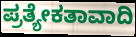
ಪ್ರತ್ಯೇಕತಾವಾದಿ